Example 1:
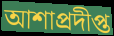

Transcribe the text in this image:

আশাপ্রদীপ্ত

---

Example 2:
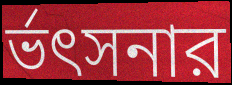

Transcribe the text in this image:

র্ভৎসনার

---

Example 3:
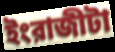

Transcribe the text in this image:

ইংরাজীটা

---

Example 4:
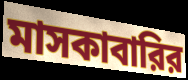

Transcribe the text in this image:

মাসকাবারির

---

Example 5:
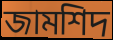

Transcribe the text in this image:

জামশিদ